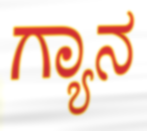
ಗ್ಯಾನ